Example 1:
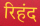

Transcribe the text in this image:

रिहंद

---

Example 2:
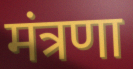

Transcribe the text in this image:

मंत्रणा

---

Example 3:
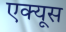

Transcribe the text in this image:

एक्यूस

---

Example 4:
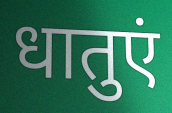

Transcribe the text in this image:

धातुएं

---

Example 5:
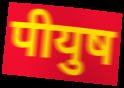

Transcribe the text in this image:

पीयुष